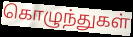
கொழுந்துகள்